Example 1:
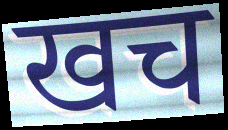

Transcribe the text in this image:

खच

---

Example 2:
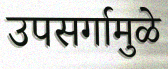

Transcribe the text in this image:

उपसर्गामुळे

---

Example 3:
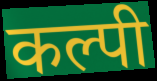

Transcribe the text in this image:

कल्पी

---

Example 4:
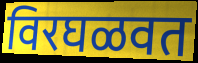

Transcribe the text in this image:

विरघळवत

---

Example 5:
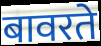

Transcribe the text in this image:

बावरते